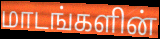
மாடங்களின்